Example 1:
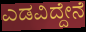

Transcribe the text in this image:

ಎಡವಿದ್ದೇನೆ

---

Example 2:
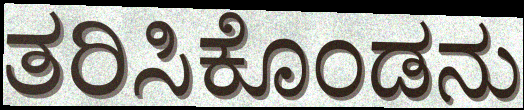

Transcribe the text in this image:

ತರಿಸಿಕೊಂಡನು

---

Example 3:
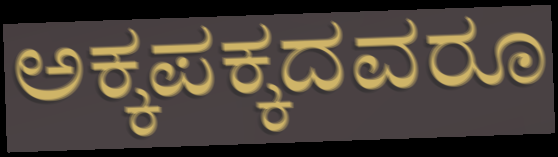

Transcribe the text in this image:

ಅಕ್ಕಪಕ್ಕದವರೂ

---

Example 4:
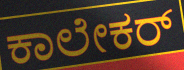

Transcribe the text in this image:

ಕಾಲೇಕರ್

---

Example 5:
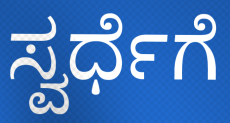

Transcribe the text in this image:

ಸ್ವರ್ಧೆಗೆ